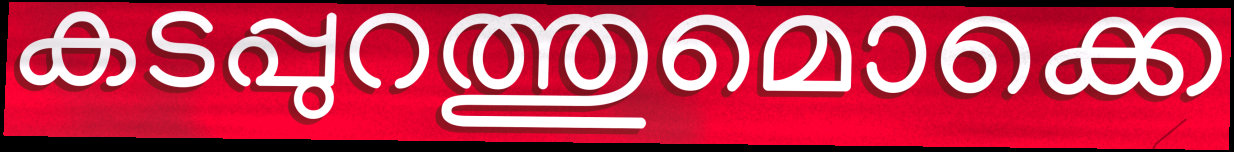
കടപ്പുറത്തുമൊക്കെ